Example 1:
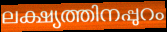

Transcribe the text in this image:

ലക്ഷ്യത്തിനപ്പുറം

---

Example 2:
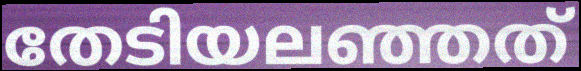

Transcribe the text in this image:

തേടിയലഞ്ഞത്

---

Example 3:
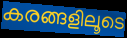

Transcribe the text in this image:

കരങ്ങളിലൂടെ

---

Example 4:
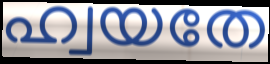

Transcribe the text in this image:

ഹ്വയതേ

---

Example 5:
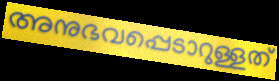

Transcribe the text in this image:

അനുഭവപ്പെടാറുള്ളത്